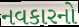
નવકારનો